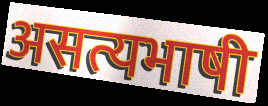
असत्यभाषी